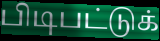
பிடிபட்டுக்